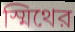
স্মিথের